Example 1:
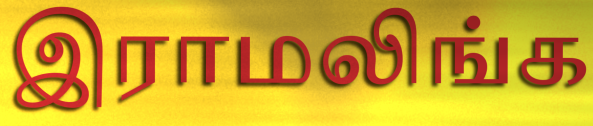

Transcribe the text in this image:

இராமலிங்க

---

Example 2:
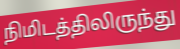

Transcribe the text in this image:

நிமிடத்திலிருந்து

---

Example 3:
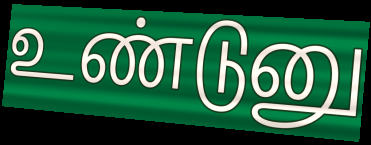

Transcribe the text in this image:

உண்டுனு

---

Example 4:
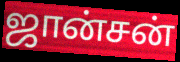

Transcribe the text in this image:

ஜான்சன்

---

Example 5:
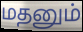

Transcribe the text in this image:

மதனும்